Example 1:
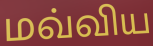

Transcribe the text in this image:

மவ்விய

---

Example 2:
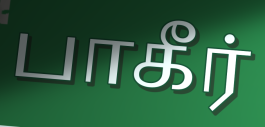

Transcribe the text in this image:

பாகீர்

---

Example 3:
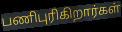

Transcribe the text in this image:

பணிபுரிகிறார்கள்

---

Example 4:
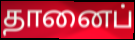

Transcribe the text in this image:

தானைப்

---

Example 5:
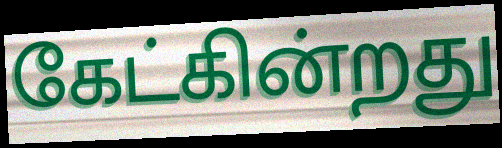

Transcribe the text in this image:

கேட்கின்றது